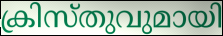
ക്രിസ്തുവുമായി